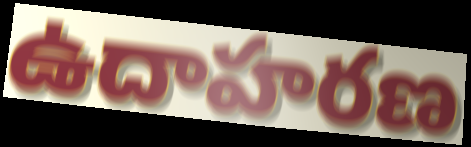
ఉదాహరణ